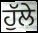
ਹੁੱਲੇ